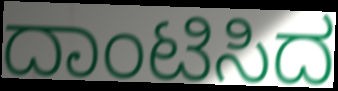
ದಾಂಟಿಸಿದ